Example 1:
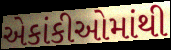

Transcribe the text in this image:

એકાંકીઓમાંથી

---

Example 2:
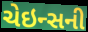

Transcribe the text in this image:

ચેઇન્સની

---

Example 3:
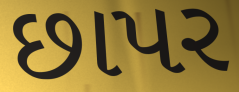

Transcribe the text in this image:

છાપર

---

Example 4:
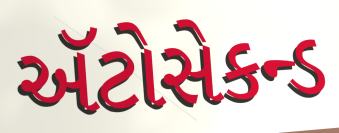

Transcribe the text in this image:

ઍટોસેકન્ડ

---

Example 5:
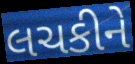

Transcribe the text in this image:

લચકીને